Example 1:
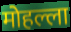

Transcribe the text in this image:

मोहल्ला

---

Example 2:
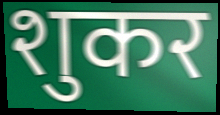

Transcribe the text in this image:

शुकर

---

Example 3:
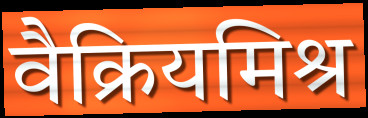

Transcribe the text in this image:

वैक्रियमिश्र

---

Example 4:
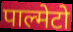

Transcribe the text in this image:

पाल्मेटो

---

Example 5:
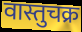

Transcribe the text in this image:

वास्तुचक्र